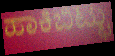
ಹಾಕಿಬಿಟ್ಟು